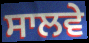
ਸਾਲਵੇ